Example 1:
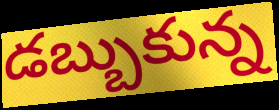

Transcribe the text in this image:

డబ్బుకున్న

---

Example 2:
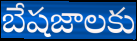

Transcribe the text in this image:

బేషజాలకు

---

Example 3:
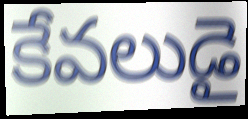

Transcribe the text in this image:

కేవలుడై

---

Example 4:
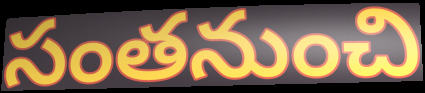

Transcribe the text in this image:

సంతనుంచి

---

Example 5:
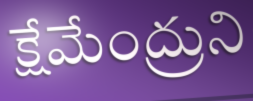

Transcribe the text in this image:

క్షేమేంద్రుని